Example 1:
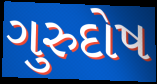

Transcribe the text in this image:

ગુરુદોષ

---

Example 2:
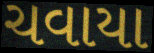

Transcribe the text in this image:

ચવાયા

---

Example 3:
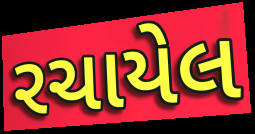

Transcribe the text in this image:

રચાયેલ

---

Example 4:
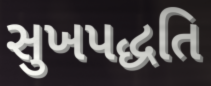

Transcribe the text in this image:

સુખપદ્ધતિ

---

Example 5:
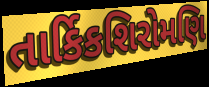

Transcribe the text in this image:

તાર્કિકશિરોમણિ